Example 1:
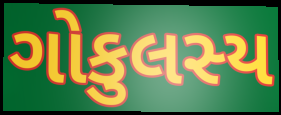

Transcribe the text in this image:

ગોકુલસ્ય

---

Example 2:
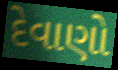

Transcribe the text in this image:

દેવાણો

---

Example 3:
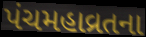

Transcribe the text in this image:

પંચમહાવ્રતના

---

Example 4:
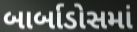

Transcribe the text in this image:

બાર્બાડોસમાં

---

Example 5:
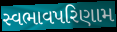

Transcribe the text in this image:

સ્વભાવપરિણામ